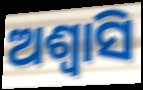
ଅଶ୍ୱାସି